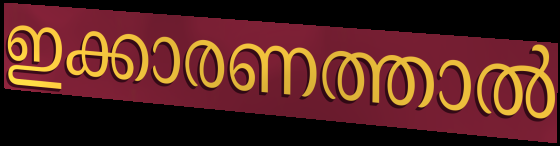
ഇക്കാരണത്താൽ